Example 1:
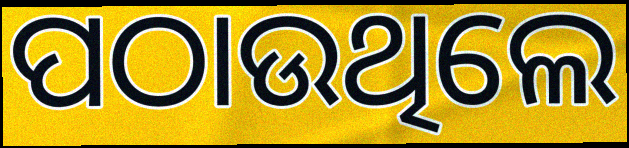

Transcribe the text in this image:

ପଠାଉଥିଲେ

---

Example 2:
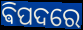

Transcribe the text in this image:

ଵିପଦରେ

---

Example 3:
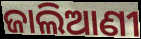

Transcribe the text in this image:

ଜାଲିଆଣୀ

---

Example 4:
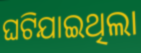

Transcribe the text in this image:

ଘଟିଯାଇଥିଲା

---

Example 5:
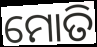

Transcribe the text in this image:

ମୋତି